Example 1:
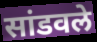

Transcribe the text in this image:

सांडवले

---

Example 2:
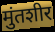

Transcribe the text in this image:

मुंतशीर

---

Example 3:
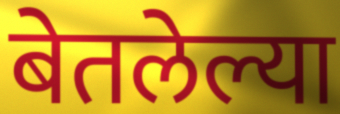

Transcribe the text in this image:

बेतलेल्या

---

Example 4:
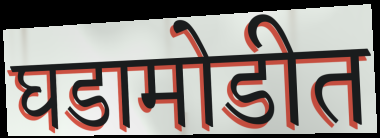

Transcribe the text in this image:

घडामोडीत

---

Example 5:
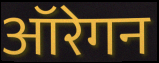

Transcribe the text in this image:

ऑरेगन